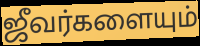
ஜீவர்களையும்